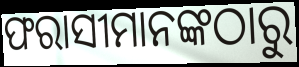
ଫରାସୀମାନଙ୍କଠାରୁ